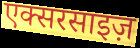
एक्सरसाइज़